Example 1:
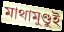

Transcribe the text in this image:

মাথামুণ্ডুই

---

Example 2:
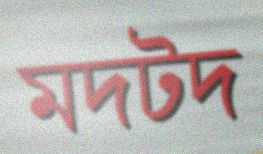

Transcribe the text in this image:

মদটদ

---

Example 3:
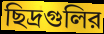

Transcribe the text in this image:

ছিদ্রগুলির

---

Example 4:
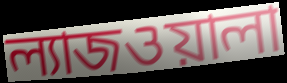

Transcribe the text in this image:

ল্যাজওয়ালা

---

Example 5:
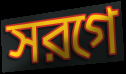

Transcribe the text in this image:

সরগে